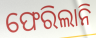
ଫେରିଲାନି